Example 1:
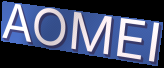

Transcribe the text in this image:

AOMEI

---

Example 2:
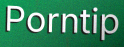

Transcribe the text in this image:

Porntip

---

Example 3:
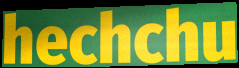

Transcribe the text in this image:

hechchu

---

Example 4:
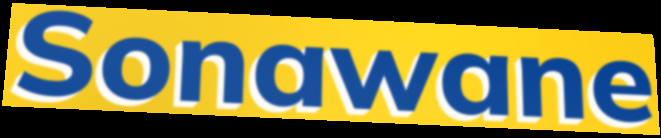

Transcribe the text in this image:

Sonawane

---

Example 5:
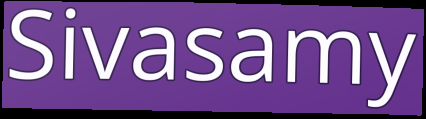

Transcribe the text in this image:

Sivasamy